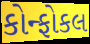
કોન્ફોકલ